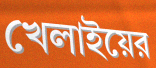
খেলাইয়ের